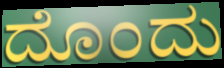
ದೊಂದು